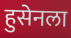
हुसेनला